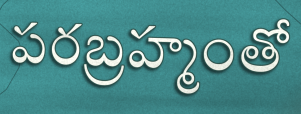
పరబ్రహ్మంతో